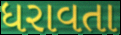
ધરાવતા